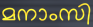
മനാംസി